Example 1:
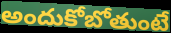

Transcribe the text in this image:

అందుకోబోతుంటే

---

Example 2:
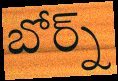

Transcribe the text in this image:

బోర్న్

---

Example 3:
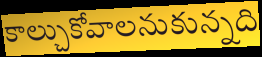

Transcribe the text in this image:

కాల్చుకోవాలనుకున్నది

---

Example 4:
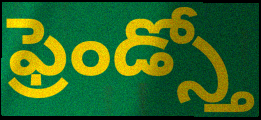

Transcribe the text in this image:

ఫ్రెండ్స్తో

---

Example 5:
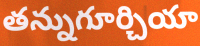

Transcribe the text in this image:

తన్నుగూర్చియా